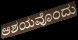
ಆಶಯವೊಂದು